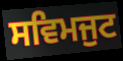
ਸਵਿਮਜੁਟ